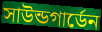
সাউন্ডগার্ডেন